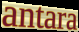
antara